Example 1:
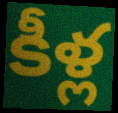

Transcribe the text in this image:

కీళ్ల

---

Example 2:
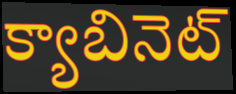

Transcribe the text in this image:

క్యాబినెట్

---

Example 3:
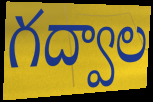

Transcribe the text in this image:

గద్వాల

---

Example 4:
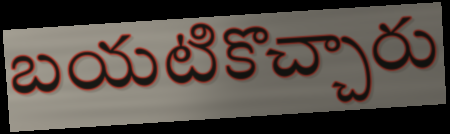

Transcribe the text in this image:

బయటికొచ్చారు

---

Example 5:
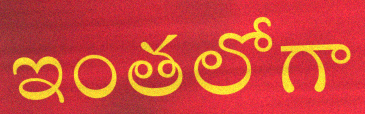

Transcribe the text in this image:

ఇంతలోగా